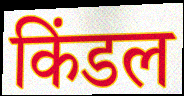
किंडल